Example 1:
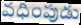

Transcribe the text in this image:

వధింపుడు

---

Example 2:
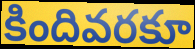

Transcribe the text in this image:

కిందివరకూ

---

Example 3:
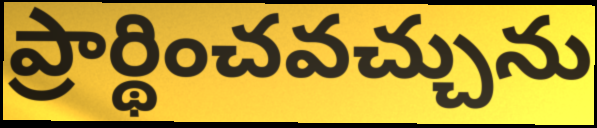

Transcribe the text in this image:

ప్రార్థించవచ్చును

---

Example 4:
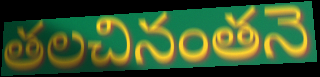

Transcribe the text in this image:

తలచినంతనె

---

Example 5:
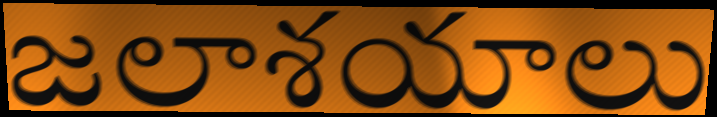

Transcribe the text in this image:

జలాశయాలు